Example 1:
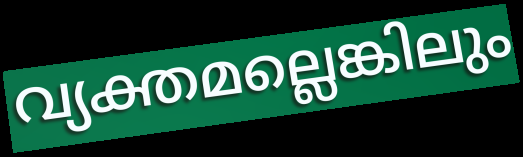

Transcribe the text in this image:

വ്യക്തമല്ലെങ്കിലും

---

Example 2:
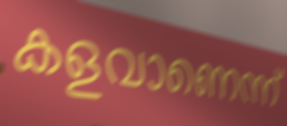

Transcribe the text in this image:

കളവാണെന്ന്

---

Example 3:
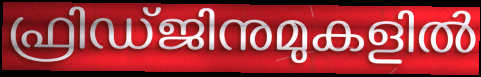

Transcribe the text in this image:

ഫ്രിഡ്ജിനുമുകളിൽ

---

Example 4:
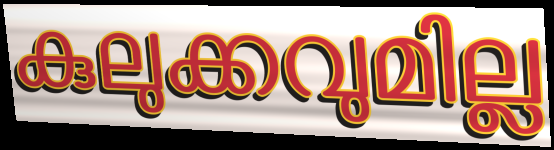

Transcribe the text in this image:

കുലുക്കവുമില്ല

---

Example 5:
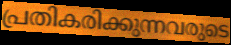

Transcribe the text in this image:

പ്രതികരിക്കുന്നവരുടെ